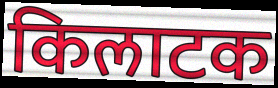
किलाटक